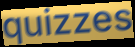
quizzes